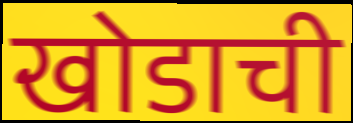
खोडाची